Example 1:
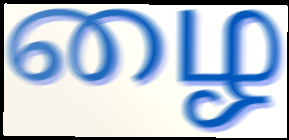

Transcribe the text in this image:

ழை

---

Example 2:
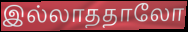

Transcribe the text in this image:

இல்லாததாலோ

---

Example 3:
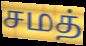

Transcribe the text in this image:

சமத்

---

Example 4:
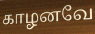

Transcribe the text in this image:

காழனவே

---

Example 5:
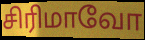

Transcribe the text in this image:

சிரிமாவோ